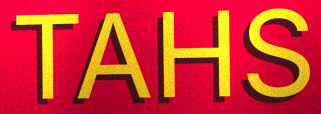
TAHS